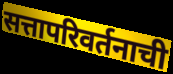
सत्तापरिवर्तनाची